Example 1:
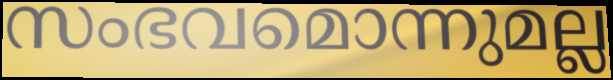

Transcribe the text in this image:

സംഭവമൊന്നുമല്ല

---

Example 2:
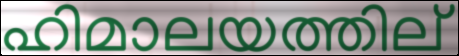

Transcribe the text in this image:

ഹിമാലയത്തില്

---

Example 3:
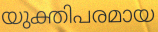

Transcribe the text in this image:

യുക്തിപരമായ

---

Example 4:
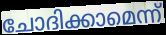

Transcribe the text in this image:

ചോദിക്കാമെന്ന്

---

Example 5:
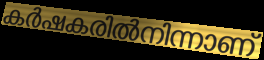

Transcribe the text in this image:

കർഷകരിൽനിന്നാണ്